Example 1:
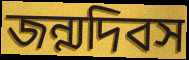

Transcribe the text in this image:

জন্মদিবস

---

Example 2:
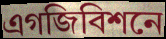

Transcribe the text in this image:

এগজিবিশনে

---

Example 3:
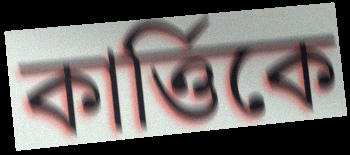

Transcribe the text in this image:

কার্ত্তিকে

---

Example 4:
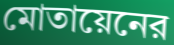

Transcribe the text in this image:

মোতায়েনের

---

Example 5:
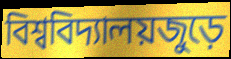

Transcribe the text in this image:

বিশ্ববিদ্যালয়জুড়ে